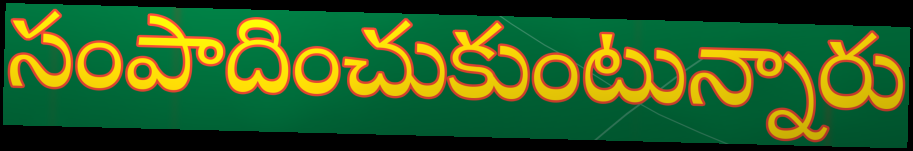
సంపాదించుకుంటున్నారు